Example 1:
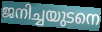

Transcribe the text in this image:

ജനിച്ചയുടനെ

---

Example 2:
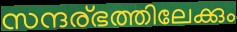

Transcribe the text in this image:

സന്ദര്ഭത്തിലേക്കും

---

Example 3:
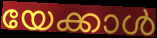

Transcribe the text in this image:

യേക്കാൾ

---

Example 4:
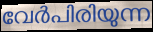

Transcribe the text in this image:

വേർപിരിയുന്ന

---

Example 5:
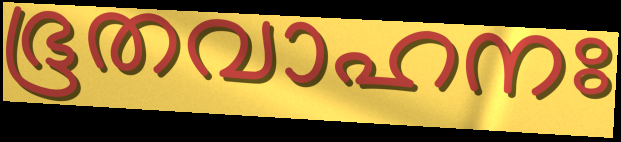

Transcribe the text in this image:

ഭൂതവാഹനഃ